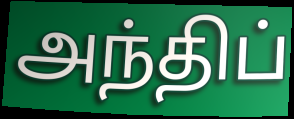
அந்திப்